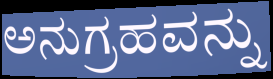
ಅನುಗ್ರಹವನ್ನು